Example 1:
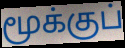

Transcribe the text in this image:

மூக்குப்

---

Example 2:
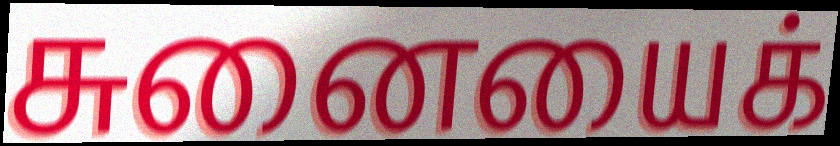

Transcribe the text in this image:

சுனையைக்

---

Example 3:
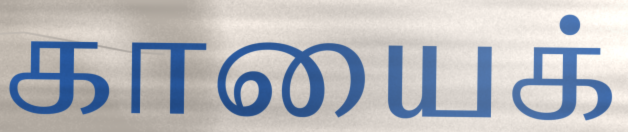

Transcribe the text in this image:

காயைக்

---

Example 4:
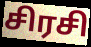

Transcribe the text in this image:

சிரசி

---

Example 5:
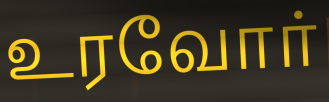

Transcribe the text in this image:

உரவோர்